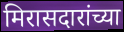
मिरासदारांच्या